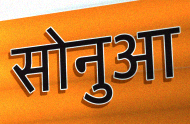
सोनुआ